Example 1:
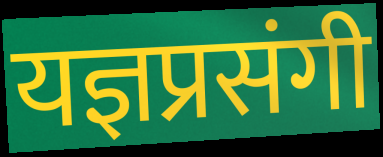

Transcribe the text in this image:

यज्ञप्रसंगी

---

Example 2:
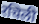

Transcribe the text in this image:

रचिली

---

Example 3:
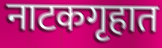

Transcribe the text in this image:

नाटकगृहात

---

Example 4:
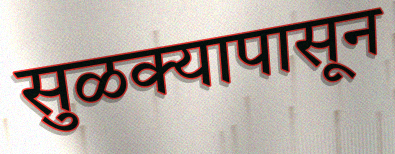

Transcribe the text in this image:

सुळक्यापासून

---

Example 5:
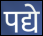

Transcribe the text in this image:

पद्ये